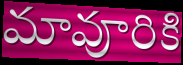
మావూరికి